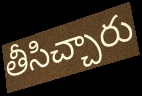
తీసిచ్చారు